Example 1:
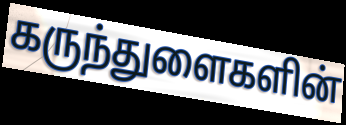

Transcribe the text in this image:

கருந்துளைகளின்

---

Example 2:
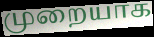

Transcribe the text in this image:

முறையாக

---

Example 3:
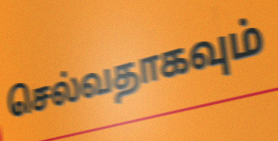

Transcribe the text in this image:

செல்வதாகவும்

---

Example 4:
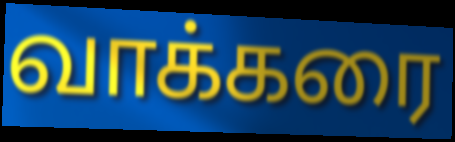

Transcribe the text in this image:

வாக்கரை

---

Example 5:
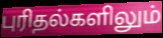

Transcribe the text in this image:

புரிதல்களிலும்